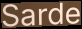
Sarde